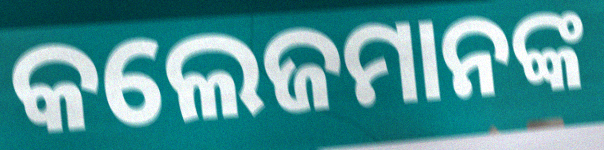
କଲେଜମାନଙ୍କ